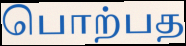
பொற்பத